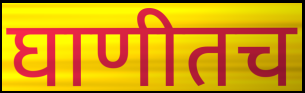
घाणीतच